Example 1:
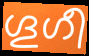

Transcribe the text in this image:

ഗൂഗീ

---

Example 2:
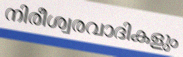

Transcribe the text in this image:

നിരീശ്വരവാദികളും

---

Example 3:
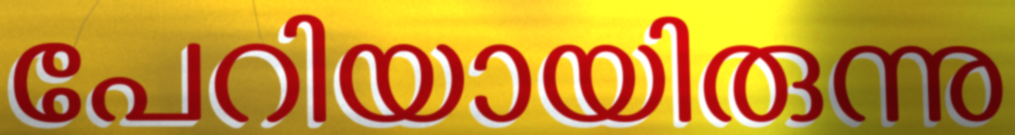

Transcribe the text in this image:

പേറിയായിരുന്നു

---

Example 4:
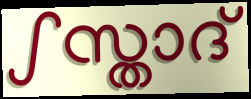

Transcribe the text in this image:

ഽസ്താദ്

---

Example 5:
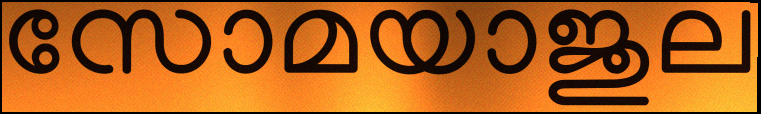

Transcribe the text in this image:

സോമയാജുല